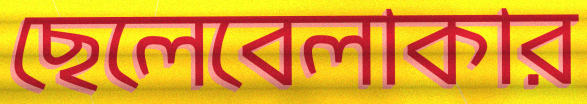
ছেলেবেলাকার